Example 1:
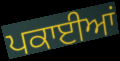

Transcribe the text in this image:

ਪਕਾਈਆਂ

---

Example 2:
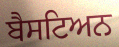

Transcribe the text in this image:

ਬੈਸਟਿਅਨ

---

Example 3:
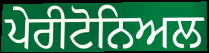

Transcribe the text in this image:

ਪੇਰੀਟੋਨਿਅਲ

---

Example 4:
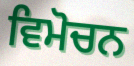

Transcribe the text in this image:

ਵਿਮੋਚਨ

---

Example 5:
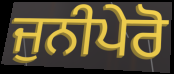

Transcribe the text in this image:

ਜੁਨੀਪੇਰੋ